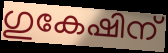
ഗുകേഷിന്